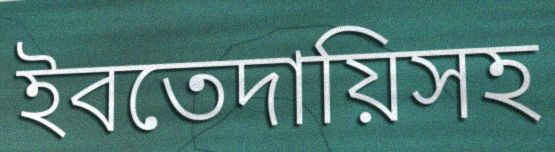
ইবতেদায়িসহ